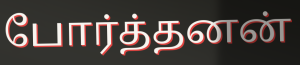
போர்த்தனன்